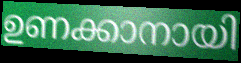
ഉണക്കാനായി